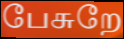
பேசுறே